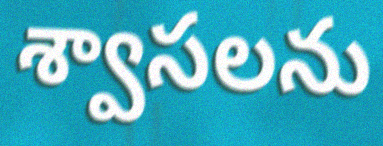
శ్వాసలను